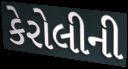
કેરોલીની